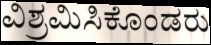
ವಿಶ್ರಮಿಸಿಕೊಂಡರು